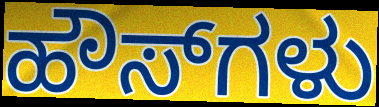
ಹೌಸ್‌ಗಳು